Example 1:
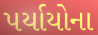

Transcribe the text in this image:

પર્યાયોના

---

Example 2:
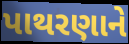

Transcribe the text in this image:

પાથરણાને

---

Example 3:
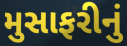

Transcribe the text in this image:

મુસાફરીનું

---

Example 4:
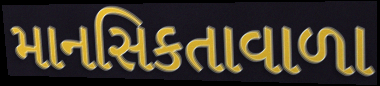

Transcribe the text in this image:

માનસિકતાવાળા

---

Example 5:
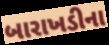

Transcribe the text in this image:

બારાખડીના